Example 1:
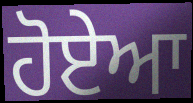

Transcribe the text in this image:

ਹੋਏਆ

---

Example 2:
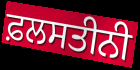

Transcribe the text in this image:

ਫ਼ਲਸਤੀਨੀ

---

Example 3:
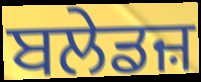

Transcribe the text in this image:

ਬਲੇਡਜ਼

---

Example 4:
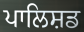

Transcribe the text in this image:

ਪਾਲਿਸ਼ਡ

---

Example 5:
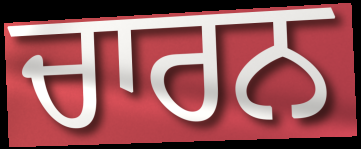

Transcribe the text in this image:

ਚਾਰਨ